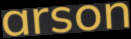
arson